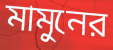
মামুনের